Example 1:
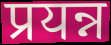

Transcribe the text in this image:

प्रयन्न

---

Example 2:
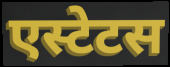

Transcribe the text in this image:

एस्टेटस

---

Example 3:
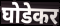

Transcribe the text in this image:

घोडेकर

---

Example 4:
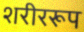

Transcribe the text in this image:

शरीररूप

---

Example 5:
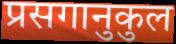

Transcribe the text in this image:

प्रसगानुकुल